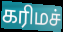
கரிமச்